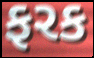
ફરક